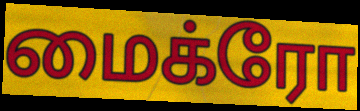
மைக்ரோ